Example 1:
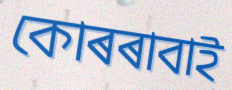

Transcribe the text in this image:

কোৰৰাবাই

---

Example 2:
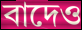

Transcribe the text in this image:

বাদেও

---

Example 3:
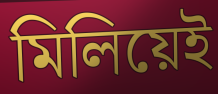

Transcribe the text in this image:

মিলিয়েই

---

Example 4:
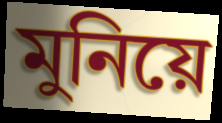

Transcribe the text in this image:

মুনিয়ে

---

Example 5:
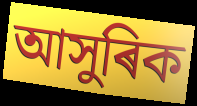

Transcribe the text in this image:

আসুৰিক